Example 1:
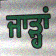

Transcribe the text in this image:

ਜਾੜ੍ਹਾਂ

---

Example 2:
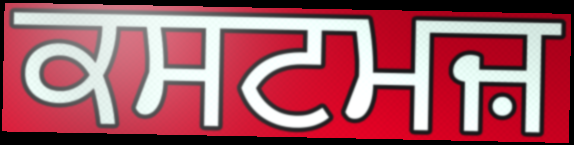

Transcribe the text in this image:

ਕਸਟਮਜ਼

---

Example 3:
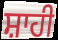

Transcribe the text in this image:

ਸ਼ਾਹੀ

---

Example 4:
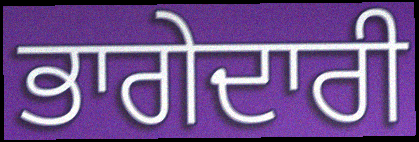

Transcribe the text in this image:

ਭਾਗੇਦਾਰੀ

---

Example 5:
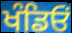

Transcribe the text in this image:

ਖੰਡਿਓਂ